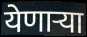
येणार्‍या